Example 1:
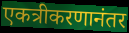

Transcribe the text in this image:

एकत्रीकरणानंतर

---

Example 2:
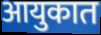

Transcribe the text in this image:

आयुकात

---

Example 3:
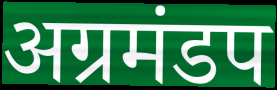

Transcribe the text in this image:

अग्रमंडप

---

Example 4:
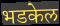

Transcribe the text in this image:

भडकेल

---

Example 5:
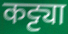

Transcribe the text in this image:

कट्ट्या